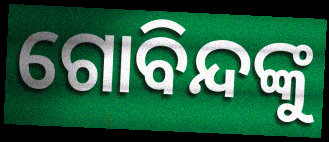
ଗୋବିନ୍ଦଙ୍କୁ